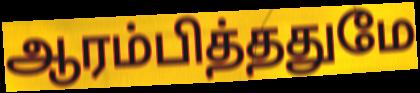
ஆரம்பித்ததுமே